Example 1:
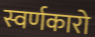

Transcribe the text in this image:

स्वर्णकारो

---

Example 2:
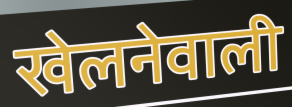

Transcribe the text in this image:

खेलनेवाली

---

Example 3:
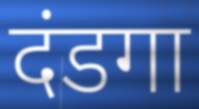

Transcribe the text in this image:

दंडगा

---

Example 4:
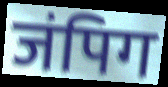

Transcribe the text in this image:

जंपिग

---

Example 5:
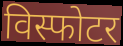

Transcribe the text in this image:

विस्फोटर